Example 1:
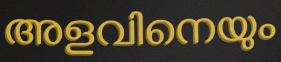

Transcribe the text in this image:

അളവിനെയും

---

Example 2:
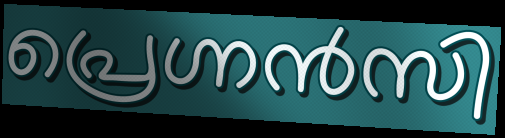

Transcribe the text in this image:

പ്രെഗ്നൻസി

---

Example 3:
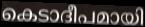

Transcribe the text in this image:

കെടാദീപമായി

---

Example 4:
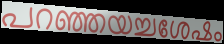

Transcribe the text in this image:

പറഞ്ഞയച്ചശേഷം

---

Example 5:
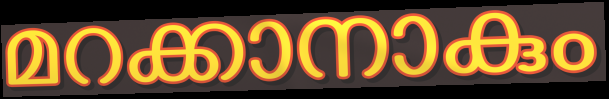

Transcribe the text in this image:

മറക്കാനാകും